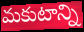
మకుటాన్ని